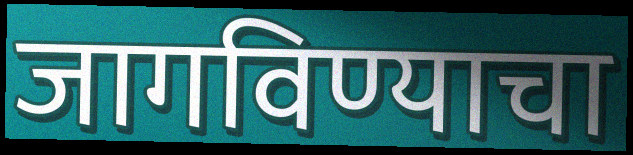
जागविण्याचा